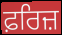
ਫ਼ਰਿਜ਼